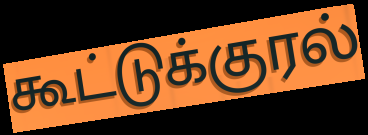
கூட்டுக்குரல்